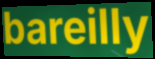
bareilly